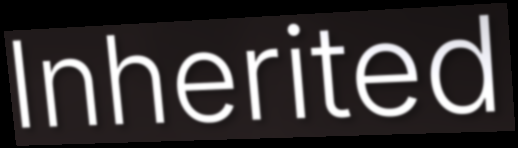
Inherited